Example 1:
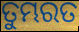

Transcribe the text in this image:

ତୁମ୍ଭରତ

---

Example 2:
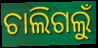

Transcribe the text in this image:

ଚାଲିଗଲୁଁ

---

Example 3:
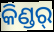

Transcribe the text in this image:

କିଣ୍ଡର୍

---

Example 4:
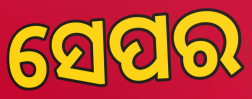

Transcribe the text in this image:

ସେପର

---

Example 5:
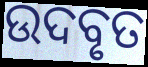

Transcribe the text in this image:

ଉଦବୃତ